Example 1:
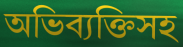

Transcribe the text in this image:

অভিব্যক্তিসহ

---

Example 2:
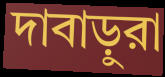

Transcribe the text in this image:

দাবাড়ুরা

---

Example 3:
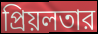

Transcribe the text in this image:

প্রিয়লতার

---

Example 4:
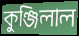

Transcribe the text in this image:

কুঞ্জিলাল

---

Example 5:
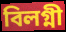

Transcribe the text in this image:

বিলগ্নী